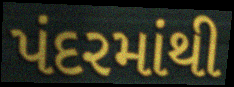
પંદરમાંથી